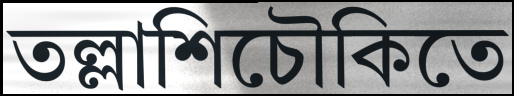
তল্লাশিচৌকিতে